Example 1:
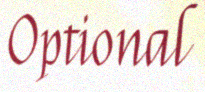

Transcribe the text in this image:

Optional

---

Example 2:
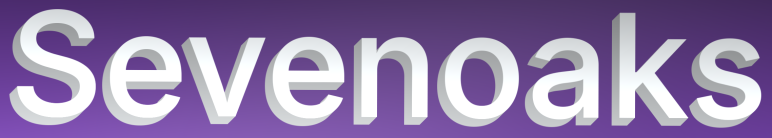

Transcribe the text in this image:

Sevenoaks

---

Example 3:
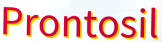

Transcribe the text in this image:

Prontosil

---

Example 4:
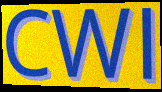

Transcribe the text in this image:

CWI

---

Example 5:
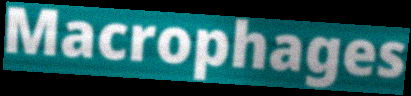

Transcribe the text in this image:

Macrophages